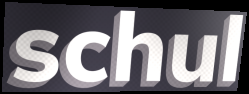
schul